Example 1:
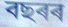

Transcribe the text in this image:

বছৰৰ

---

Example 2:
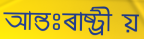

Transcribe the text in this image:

আন্তঃৰাষ্ট্ৰীয়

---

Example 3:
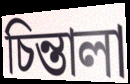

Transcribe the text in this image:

চিন্তালা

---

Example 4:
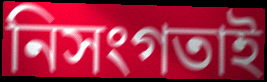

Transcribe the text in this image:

নিসংগতাই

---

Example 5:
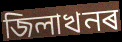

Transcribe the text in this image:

জিলাখনৰ